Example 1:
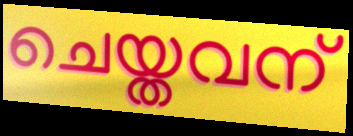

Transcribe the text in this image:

ചെയ്തവന്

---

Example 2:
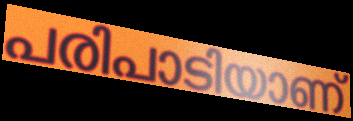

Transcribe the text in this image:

പരിപാടിയാണ്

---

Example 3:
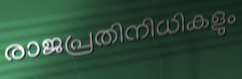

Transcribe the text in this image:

രാജപ്രതിനിധികളും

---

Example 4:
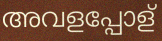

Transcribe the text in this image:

അവളപ്പോള്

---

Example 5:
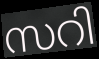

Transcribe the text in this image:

സറി